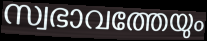
സ്വഭാവത്തേയും